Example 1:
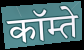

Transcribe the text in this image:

कॉम्ते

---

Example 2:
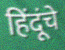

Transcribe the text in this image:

हिंदूंचे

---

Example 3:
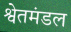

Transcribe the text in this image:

श्वेतमंडल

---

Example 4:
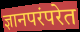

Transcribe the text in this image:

ज्ञानपरंपरेत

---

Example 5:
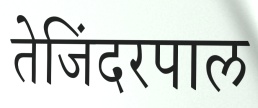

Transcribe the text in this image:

तेजिंदरपाल